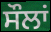
ਸੌਲਾਂ